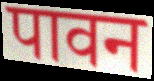
पावन